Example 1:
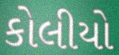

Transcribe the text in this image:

કોલીયો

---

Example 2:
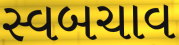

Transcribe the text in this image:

સ્વબચાવ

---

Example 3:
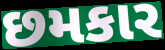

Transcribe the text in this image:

છમકાર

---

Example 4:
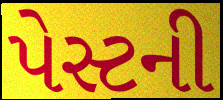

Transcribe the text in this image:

પેસ્ટની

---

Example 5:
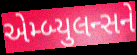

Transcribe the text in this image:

એમ્બ્યુલન્સને